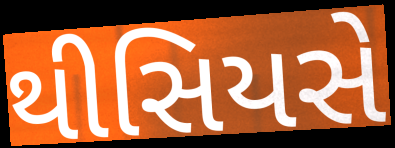
થીસિયસે